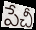
పేచీ